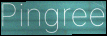
Pingree